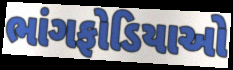
ભાંગફોડિયાઓ